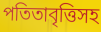
পতিতাবৃত্তিসহ